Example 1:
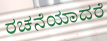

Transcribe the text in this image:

ರಚನೆಯಾದರೆ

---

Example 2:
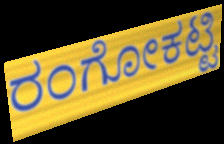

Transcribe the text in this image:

ರಂಗೋಕಟ್ಟಿ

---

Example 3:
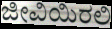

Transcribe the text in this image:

ಜೀವಿಯಿರಲಿ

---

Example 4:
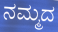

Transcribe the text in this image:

ನಮ್ಮದ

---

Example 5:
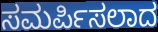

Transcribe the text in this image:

ಸಮರ್ಪಿಸಲಾದ